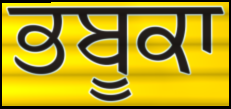
ਭਬੂਕਾ